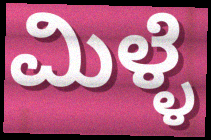
ಮಿಳ್ಳೆ